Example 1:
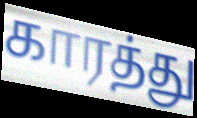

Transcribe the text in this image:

காரத்து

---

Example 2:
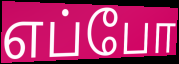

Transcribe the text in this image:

எப்போ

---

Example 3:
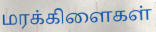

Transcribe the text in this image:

மரக்கிளைகள்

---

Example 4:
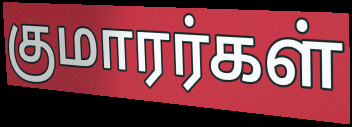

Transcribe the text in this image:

குமாரர்கள்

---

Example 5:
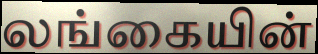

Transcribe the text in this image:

லங்கையின்